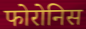
फोरोनिस